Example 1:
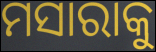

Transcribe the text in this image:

ମସାରାକୁ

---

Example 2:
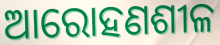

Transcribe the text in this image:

ଆରୋହଣଶୀଳ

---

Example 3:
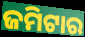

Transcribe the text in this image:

ଜମିଟାର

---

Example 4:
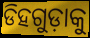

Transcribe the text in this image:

ଡିହଗୁଡ଼ାକୁ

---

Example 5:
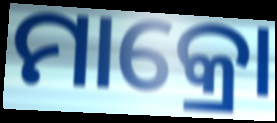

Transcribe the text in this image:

ମାକ୍ରୋ